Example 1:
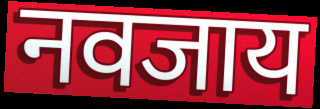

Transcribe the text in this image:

नवजाय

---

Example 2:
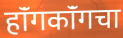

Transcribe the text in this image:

हॉंगकॉंगचा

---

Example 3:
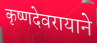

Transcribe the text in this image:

कृष्णदेवरायाने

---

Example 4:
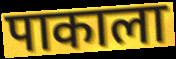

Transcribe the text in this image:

पाकाला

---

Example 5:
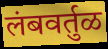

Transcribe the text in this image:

लंबवर्तुळ